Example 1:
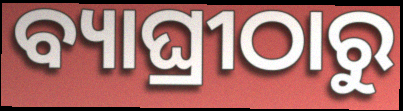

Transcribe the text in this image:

ବ୍ୟାଘ୍ରୀଠାରୁ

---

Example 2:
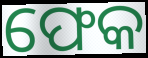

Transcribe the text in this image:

ଫେକ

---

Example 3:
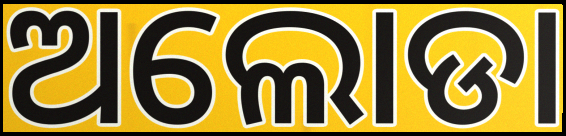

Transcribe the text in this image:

ଅଲୋଡା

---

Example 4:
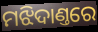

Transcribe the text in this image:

ମଝିଦାଣ୍ତରେ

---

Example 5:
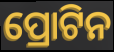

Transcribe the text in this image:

ପ୍ରୋଟିନ